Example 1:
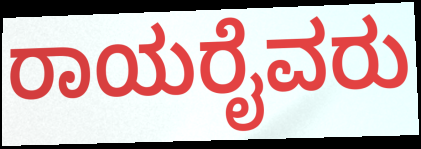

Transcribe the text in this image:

ರಾಯರೈವರು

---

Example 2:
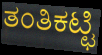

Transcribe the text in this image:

ತಂತಿಕಟ್ಟಿ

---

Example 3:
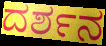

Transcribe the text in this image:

ದರ್ಶನ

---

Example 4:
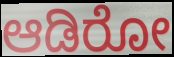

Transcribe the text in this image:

ಆಡಿರೋ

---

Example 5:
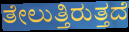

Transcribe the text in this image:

ತೇಲುತ್ತಿರುತ್ತದೆ